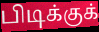
பிடிக்குக்